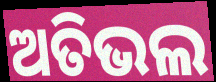
ଅତିଭଲ